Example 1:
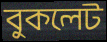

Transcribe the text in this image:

বুকলেট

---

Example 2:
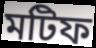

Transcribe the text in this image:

মটিফ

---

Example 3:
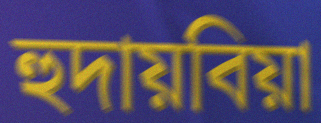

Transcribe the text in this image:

হুদায়বিয়া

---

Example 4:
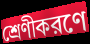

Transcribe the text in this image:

শ্রেণীকরণে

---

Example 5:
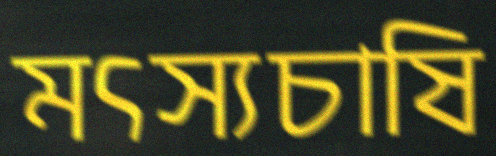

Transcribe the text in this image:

মৎস্যচাষি